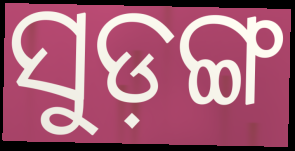
ସୁଡ଼ଙ୍ଗ